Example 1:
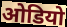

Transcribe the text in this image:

ओडियो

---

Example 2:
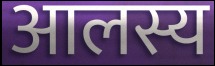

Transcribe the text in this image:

आलस्य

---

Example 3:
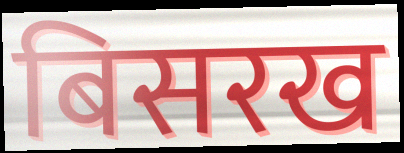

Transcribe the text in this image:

बिसरख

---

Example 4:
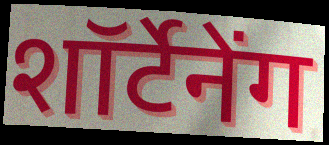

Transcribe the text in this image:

शॉर्टेनेंग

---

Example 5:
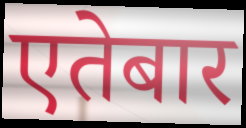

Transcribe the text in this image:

एतेबार